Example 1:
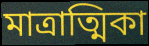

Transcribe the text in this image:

মাত্রাত্মিকা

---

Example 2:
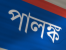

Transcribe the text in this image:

পালঙ্ক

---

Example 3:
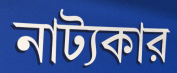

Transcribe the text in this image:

নাট্যকার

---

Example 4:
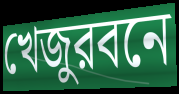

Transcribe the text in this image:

খেজুরবনে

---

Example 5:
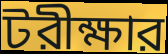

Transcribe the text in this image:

টরীক্ষার